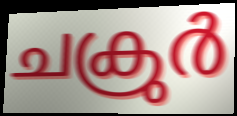
ചക്രുർ